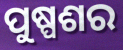
ପୁଷ୍ପଶର